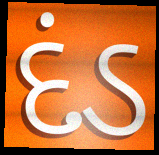
દંડ